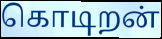
கொடிறன்